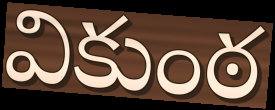
వికుంఠ